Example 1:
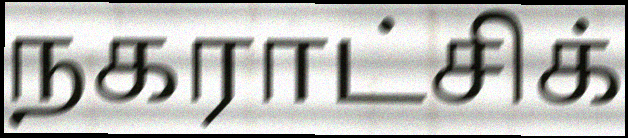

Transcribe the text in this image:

நகராட்சிக்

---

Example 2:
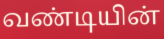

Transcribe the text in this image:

வண்டியின்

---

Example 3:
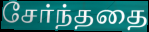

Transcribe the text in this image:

சேர்ந்ததை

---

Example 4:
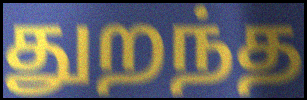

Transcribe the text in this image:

துறந்த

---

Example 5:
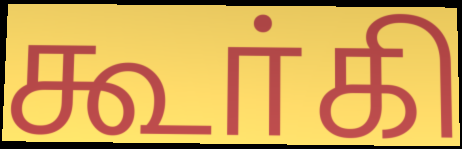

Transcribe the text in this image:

கூர்கி